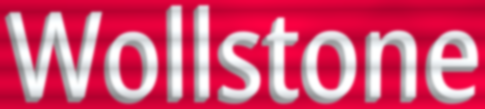
Wollstone